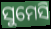
ସୁମେସି